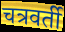
चत्रवर्ती